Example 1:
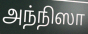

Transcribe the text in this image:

அந்நிஸா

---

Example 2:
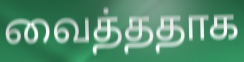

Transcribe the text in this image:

வைத்ததாக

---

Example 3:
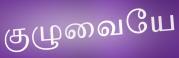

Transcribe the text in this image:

குழுவையே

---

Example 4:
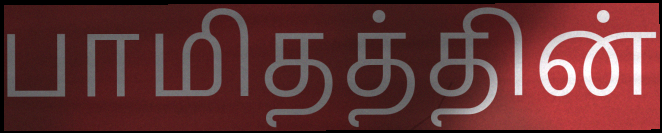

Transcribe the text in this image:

பாமிதத்தின்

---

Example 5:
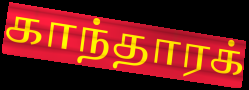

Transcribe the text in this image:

காந்தாரக்